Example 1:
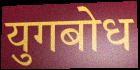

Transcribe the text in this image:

युगबोध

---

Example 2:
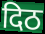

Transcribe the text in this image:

दिठ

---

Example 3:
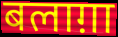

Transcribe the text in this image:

बलाग़ा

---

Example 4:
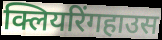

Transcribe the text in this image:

क्लियरिंगहाउस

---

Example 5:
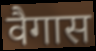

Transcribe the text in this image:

वैगास